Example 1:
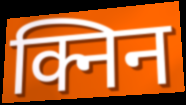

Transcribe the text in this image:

क्निन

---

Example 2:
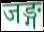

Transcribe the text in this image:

जङ्ग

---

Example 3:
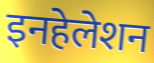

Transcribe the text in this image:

इनहेलेशन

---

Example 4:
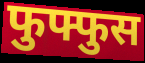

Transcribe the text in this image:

फुफ्फुस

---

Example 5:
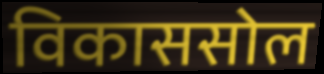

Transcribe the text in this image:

विकाससोल